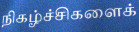
நிகழ்ச்சிகளைக்